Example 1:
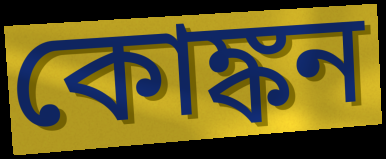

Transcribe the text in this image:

কোঙ্কন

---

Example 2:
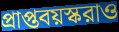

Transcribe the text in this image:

প্রাপ্তবয়স্করাও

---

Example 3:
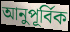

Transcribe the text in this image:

আনুপূর্বিক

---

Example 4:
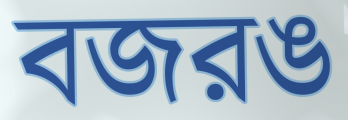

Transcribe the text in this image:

বজরঙ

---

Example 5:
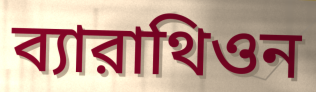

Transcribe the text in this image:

ব্যারাথিওন